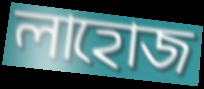
লাহোজ